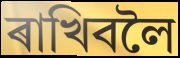
ৰাখিবলৈ